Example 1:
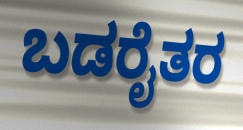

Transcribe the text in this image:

ಬಡರೈತರ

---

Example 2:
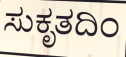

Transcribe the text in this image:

ಸುಕೃತದಿಂ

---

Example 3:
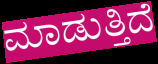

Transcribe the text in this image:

ಮಾಡುತ್ತಿದೆ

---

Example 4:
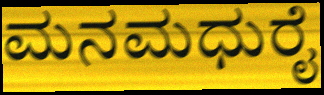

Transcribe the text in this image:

ಮನಮಧುರೈ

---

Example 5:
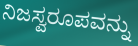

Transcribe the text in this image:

ನಿಜಸ್ವರೂಪವನ್ನು